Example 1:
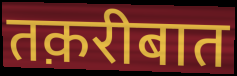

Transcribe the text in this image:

तक़रीबात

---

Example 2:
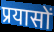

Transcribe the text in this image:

प्रयासों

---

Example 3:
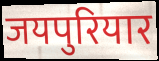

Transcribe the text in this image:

जयपुरियार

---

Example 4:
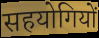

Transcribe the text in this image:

सहयोगियों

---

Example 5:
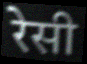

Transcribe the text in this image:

रेसी